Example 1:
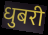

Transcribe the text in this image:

धुबरी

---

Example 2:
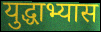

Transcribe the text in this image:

युद्धाभ्यास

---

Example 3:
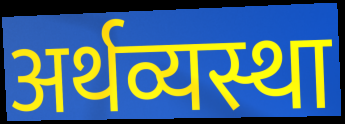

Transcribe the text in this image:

अर्थव्यस्था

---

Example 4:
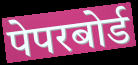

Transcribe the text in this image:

पेपरबोर्ड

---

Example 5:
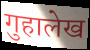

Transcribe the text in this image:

गुहालेख